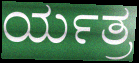
ರ್ಯತ್ರ